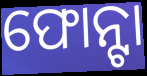
ଫୋନ୍ଟା